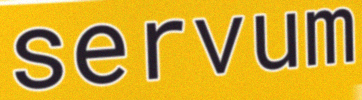
servum